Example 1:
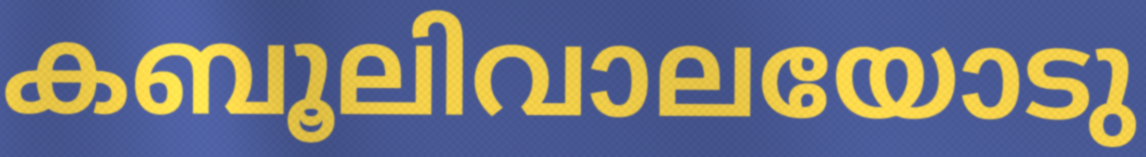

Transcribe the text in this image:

കബൂലിവാലയോടു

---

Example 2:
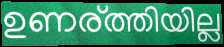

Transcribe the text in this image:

ഉണര്ത്തിയില്ല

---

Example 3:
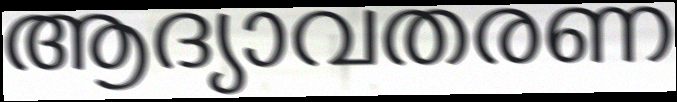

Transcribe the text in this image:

ആദ്യാവതരണ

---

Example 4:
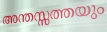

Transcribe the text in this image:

അന്തസ്സത്തയും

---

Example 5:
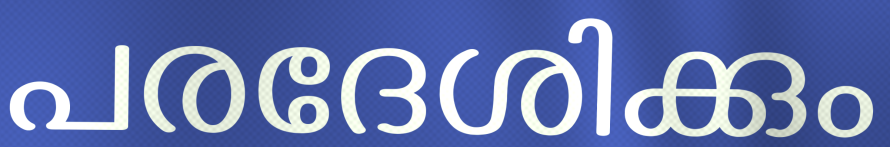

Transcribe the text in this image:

പരദേശിക്കും